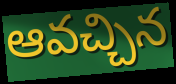
ఆవచ్చిన